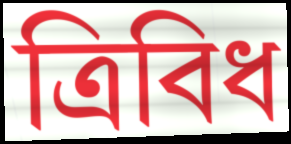
ত্রিবিধ